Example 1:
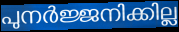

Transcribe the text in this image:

പുനർജ്ജനിക്കില്ല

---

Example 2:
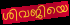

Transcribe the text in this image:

ശിവജിയെ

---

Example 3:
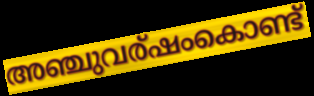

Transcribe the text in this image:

അഞ്ചുവര്ഷംകൊണ്ട്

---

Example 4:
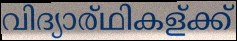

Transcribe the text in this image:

വിദ്യാര്ഥികള്ക്ക്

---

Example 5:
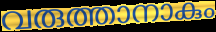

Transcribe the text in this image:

വരുത്താനാകും